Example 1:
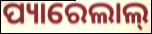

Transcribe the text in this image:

ପ୍ୟାରେଲାଲ୍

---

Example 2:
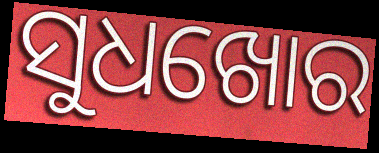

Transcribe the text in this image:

ସୁଧଖୋର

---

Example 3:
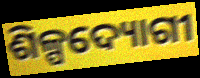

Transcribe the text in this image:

ଶିଳ୍ପଦ୍ୟୋଗୀ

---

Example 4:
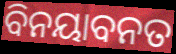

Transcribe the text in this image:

ବିନୟାବନତ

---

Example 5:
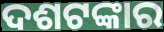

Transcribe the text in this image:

ଦଶଟଙ୍କାର